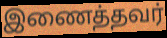
இணைத்தவர்